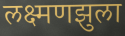
लक्ष्मणझुला